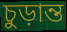
চুড়ান্ত